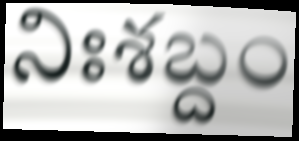
నిఃశబ్దం